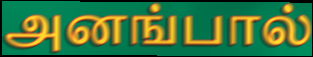
அனங்பால்